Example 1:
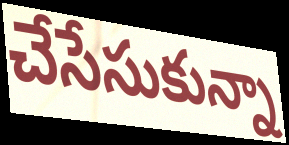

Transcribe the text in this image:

చేసేసుకున్నా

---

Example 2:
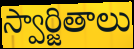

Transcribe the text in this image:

స్వార్జితాలు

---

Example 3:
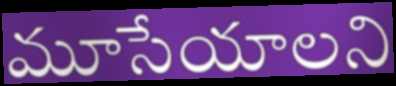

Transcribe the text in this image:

మూసేయాలని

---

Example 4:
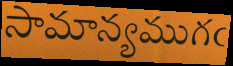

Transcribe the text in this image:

సామాన్యముగఁ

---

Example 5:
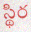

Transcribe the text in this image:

స్థిర